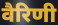
वैरिणी